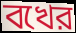
বখের